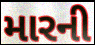
મારની